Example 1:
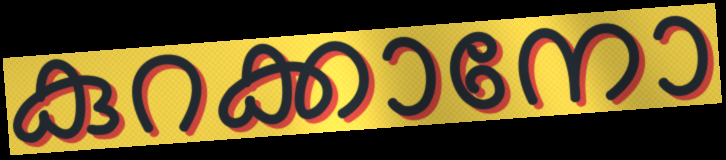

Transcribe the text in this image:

കുറക്കാനോ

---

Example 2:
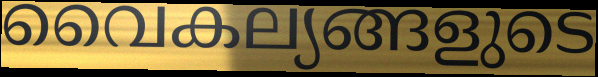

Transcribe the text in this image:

വൈകല്യങ്ങളുടെ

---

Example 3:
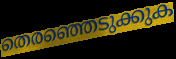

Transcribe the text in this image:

തെരഞ്ഞെടുക്കുക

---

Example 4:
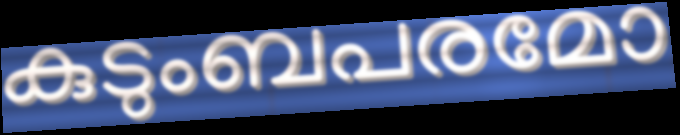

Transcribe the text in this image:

കുടുംബപരമോ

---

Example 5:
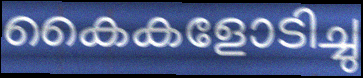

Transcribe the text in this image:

കൈകളോടിച്ചു